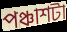
পঞ্চাশটা